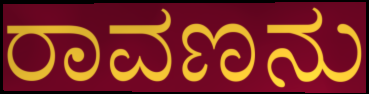
ರಾವಣನು